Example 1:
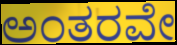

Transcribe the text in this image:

ಅಂತರವೇ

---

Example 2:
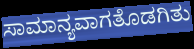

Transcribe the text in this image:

ಸಾಮಾನ್ಯವಾಗತೊಡಗಿತು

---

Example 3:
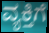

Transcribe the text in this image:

ವ್ಯಕ್ತಿಗೆ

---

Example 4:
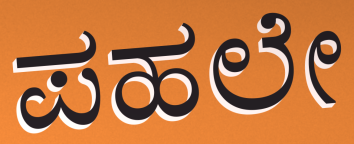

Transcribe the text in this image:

ಪಹಲೇ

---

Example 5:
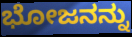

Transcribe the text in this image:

ಭೋಜನನ್ನು